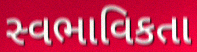
સ્વભાવિકતા